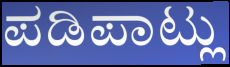
ಪಡಿಪಾಟ್ಲು